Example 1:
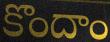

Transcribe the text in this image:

కొందాం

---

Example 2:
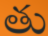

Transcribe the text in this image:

తు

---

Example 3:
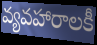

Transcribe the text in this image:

వ్యవహారాలకీ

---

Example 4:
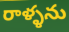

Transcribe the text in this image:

రాళ్ళను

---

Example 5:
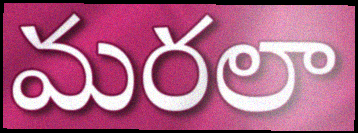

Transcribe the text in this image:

మరలా